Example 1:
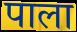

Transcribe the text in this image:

पाला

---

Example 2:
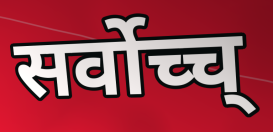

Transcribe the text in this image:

सर्वोच्च्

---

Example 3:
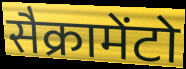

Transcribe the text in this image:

सैक्रामेंटो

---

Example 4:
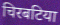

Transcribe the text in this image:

चिरबटिया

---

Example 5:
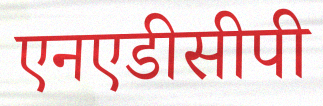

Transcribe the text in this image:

एनएडीसीपी